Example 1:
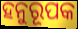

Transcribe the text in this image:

ହନୁରୂପକ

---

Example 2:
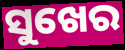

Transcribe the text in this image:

ସୁଖେର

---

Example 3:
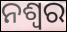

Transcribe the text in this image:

ନଶ୍ଵର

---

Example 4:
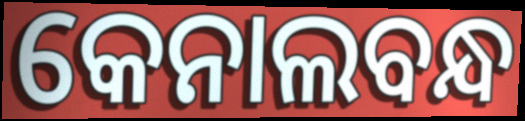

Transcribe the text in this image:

କେନାଲବନ୍ଧ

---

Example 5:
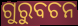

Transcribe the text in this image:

ଗୁରୁବଚନ